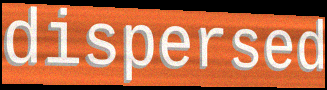
dispersed